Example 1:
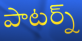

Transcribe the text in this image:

పాటర్న్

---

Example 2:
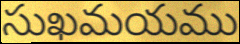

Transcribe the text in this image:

సుఖమయము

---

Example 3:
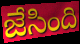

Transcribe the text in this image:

జేసింది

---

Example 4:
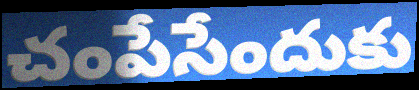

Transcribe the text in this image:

చంపేసేందుకు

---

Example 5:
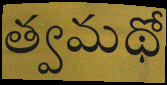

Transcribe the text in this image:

త్వమథో